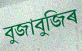
বুজাবুজিৰ